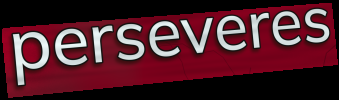
perseveres